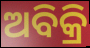
ଅବିକ୍ରି